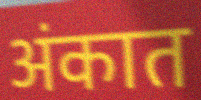
अंकात